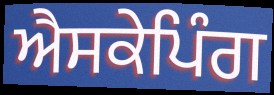
ਐਸਕੇਪਿੰਗ